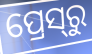
ପ୍ରେସ୍‍ରୁ